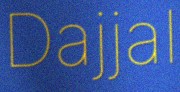
Dajjal